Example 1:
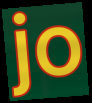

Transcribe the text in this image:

jo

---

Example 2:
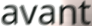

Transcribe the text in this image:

avant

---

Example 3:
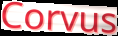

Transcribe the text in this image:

Corvus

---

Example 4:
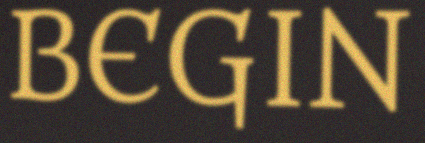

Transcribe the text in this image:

BEGIN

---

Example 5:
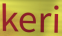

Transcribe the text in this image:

keri